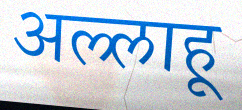
अल्लाहू